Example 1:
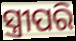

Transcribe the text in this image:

ସ୍ତ୍ରୀପରି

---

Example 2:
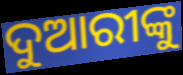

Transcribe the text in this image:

ଦୁଆରୀଙ୍କୁ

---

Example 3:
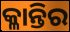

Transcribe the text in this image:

କ୍ଳାନ୍ତିର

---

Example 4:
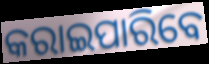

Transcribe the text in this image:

କରାଇପାରିବେ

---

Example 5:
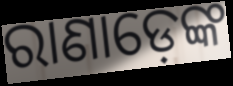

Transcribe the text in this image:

ରାଣାଡ଼େଙ୍କ